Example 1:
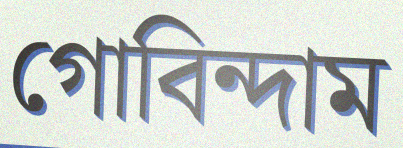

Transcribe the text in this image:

গোবিন্দাম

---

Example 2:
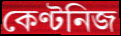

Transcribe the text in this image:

কেণ্টনিজ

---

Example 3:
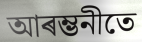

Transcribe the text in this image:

আৰম্ভনীতে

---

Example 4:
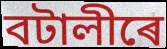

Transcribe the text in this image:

বটালীৰে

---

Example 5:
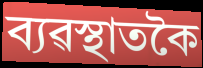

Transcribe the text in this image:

ব্যৱস্থাতকৈ